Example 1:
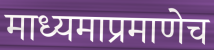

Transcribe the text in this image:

माध्यमाप्रमाणेच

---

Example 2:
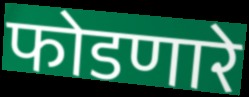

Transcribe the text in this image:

फोडणारे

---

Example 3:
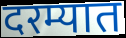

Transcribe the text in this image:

दरम्यात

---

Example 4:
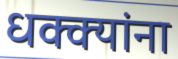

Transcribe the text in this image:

धक्क्यांना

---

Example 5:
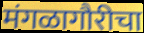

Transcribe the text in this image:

मंगळागौरीचा